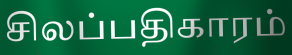
சிலப்பதிகாரம்